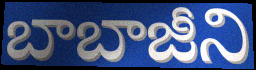
బాబాజీని